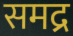
समद्र